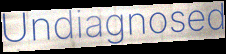
Undiagnosed